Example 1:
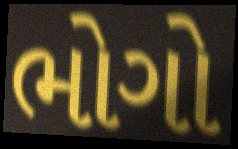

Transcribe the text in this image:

ભોગો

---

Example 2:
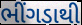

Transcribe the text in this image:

ભીંગડાથી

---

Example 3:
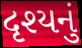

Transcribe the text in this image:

દૃશ્યનું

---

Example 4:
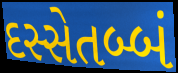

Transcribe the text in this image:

દસ્સેતબ્બં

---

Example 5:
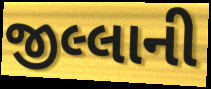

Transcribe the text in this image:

જીલ્લાની